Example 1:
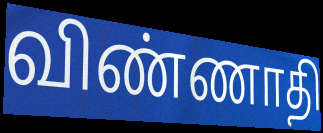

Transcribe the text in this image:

விண்ணாதி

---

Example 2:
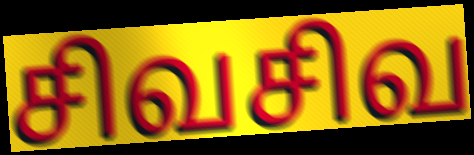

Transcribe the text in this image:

சிவசிவ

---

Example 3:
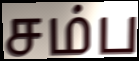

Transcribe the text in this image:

சம்ப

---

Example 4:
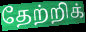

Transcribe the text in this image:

தேற்றிக்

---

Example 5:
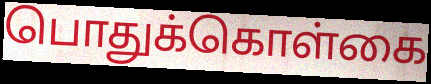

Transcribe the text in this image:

பொதுக்கொள்கை